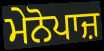
ਮੇਨੋਪਾਜ਼